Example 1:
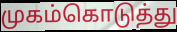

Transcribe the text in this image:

முகம்கொடுத்து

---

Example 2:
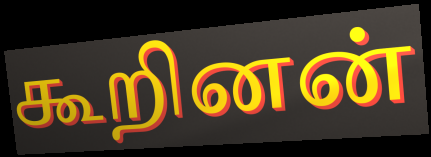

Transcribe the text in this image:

கூறினன்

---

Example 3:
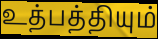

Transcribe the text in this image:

உத்பத்தியும்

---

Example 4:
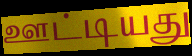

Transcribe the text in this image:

ஊட்டியது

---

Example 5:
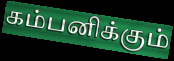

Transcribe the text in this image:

கம்பனிக்கும்